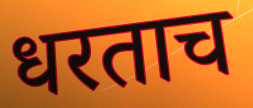
धरताच